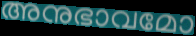
അനുഭാവമോ